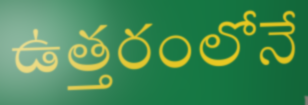
ఉత్తరంలోనే